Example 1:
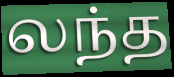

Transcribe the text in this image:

லந்த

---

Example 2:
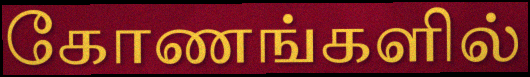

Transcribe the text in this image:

கோணங்களில்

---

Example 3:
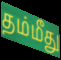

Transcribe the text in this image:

தம்மீது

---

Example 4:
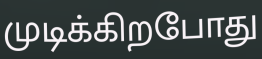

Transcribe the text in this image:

முடிக்கிறபோது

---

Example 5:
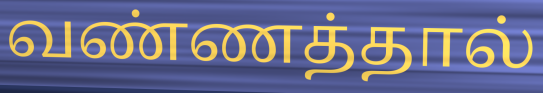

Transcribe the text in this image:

வண்ணத்தால்